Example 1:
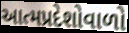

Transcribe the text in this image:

આત્મપ્રદેશોવાળો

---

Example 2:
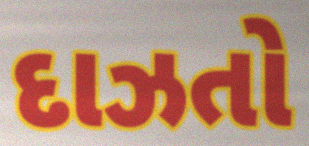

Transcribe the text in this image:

દાઝતો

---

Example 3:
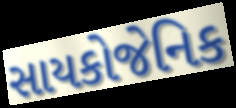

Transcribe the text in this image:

સાયકોજેનિક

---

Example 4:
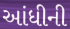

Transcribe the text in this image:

આંધીની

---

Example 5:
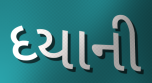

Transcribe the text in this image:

ધ્યાની